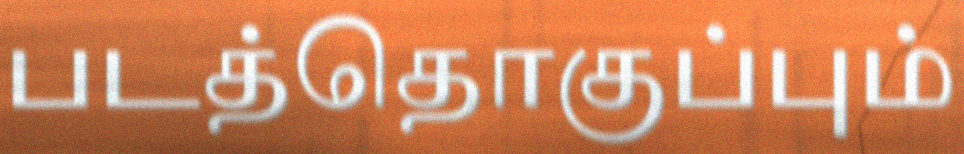
படத்தொகுப்பும்